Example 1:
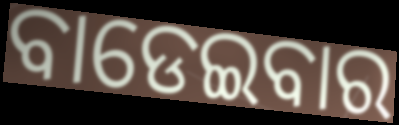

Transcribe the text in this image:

ବାଡେଇବାର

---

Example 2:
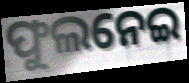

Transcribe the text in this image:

ଫୁଲନେଇ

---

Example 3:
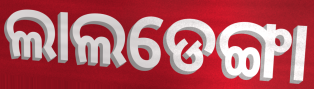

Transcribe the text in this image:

ଲାଲଡେଙ୍ଗା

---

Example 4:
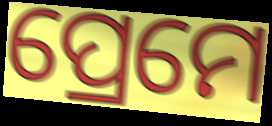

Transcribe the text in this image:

ପ୍ରେମେ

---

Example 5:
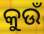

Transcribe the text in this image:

କୁଉଁ